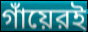
গাঁয়েরই